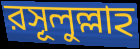
রসূলুল্লাহ